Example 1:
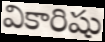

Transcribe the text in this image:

వికారిషు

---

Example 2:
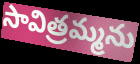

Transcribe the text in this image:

సావిత్రమ్మను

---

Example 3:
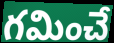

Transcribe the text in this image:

గమించే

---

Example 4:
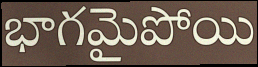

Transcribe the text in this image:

భాగమైపోయి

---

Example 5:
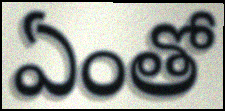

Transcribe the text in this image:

ఏంతో